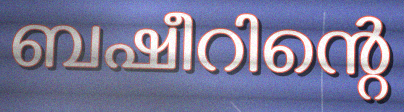
ബഷീറിന്റെ